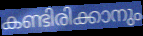
കണ്ടിരിക്കാനും